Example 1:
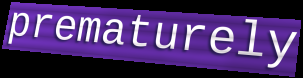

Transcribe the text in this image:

prematurely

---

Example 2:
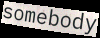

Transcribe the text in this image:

somebody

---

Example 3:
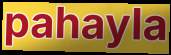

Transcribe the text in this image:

pahayla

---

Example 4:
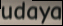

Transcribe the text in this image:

udaya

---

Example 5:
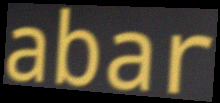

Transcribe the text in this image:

abar